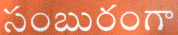
సంబురంగా